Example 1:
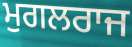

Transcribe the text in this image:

ਮੁਗਲਰਾਜ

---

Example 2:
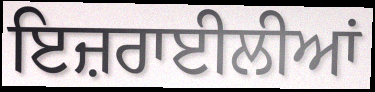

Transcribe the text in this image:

ਇਜ਼ਰਾਈਲੀਆਂ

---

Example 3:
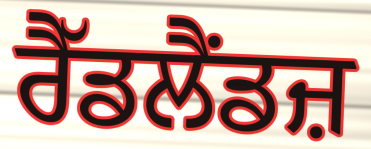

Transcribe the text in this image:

ਰੈੱਡਲੈਂਡਜ਼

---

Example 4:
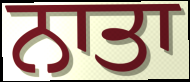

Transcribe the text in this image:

ਨਾਤਾ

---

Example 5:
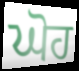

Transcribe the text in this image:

ਘੋਹ